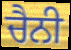
ਚੈਨੀ